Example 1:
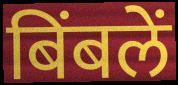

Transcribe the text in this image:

बिंबलें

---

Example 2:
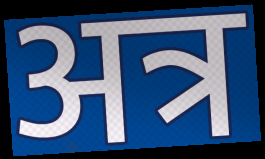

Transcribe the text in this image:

अत्र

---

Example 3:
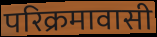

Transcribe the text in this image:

परिक्रमावासी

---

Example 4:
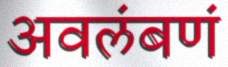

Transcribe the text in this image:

अवलंबणं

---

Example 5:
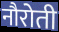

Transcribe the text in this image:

नौरोती